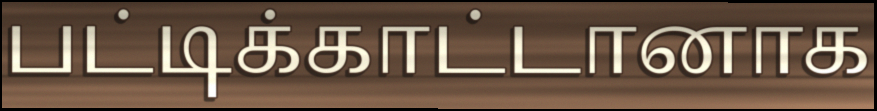
பட்டிக்காட்டானாக